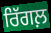
ਰਿੱਗਲ਼